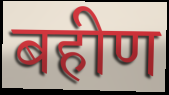
बहीण